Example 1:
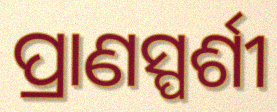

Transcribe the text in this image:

ପ୍ରାଣସ୍ପର୍ଶୀ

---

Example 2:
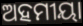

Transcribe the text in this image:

ଅହମୀୟା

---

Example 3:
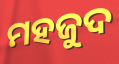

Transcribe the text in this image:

ମହଜୁଦ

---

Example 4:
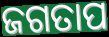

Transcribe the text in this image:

ଜଗତାପ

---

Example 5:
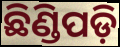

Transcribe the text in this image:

ଛିଣ୍ଡିପଡ଼ି